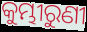
କୁମ୍ଭୀରୁଣୀ